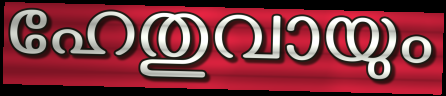
ഹേതുവായും